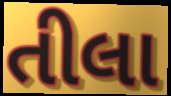
તીલા